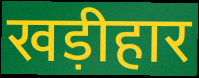
खड़ीहार